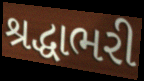
શ્રદ્ધાભરી